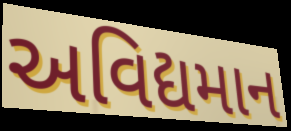
અવિદ્યમાન